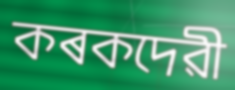
কৰকদেৱী